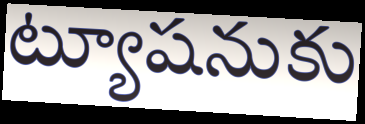
ట్యూషనుకు